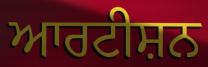
ਆਰਟੀਸ਼ਨ